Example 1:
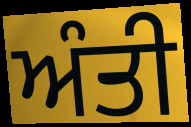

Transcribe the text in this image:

ਅੰਤੀ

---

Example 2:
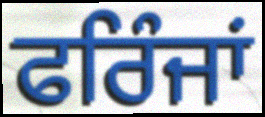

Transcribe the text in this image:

ਫਰਿੰਜਾਂ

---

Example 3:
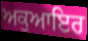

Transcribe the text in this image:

ਅਕੁਆਇਰ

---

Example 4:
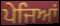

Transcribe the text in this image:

ਪੇਜਿਆਂ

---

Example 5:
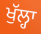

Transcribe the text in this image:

ਖੁੱਲ੍ਹਾ